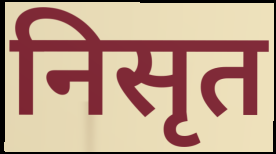
निसृत